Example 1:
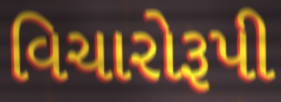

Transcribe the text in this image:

વિચારોરૂપી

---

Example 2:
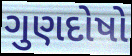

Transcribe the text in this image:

ગુણદોષો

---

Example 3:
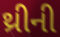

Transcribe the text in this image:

થ્રીની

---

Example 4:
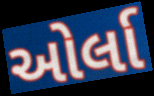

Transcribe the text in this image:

ઓર્લા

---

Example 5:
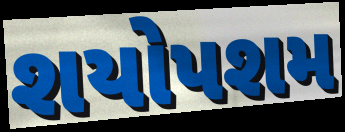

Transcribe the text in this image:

શયોપશમ